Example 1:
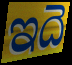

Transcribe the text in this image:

ఇదె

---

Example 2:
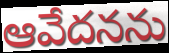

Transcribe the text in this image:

ఆవేదనను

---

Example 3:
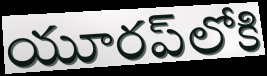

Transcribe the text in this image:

యూరప్‌లోకి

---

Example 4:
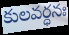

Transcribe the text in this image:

కులవర్ధనః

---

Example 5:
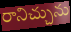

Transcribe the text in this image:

రానిచ్చును